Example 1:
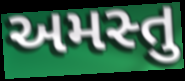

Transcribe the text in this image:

અમસ્તુ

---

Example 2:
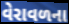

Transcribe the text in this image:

વેરાવળના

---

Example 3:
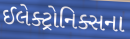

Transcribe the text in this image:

ઈલેક્ટ્રોનિક્સના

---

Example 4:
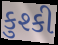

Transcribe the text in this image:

કુશ્કી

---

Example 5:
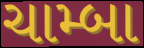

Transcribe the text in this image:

ચામ્બા